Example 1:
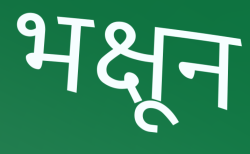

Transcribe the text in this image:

भक्षून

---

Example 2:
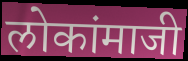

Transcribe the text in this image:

लोकांमाजी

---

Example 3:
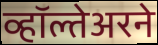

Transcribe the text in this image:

व्हॉल्तेअरने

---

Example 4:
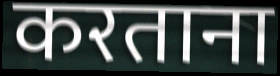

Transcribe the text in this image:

करताना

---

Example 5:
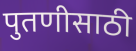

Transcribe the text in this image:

पुतणीसाठी